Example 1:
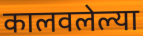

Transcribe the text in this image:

कालवलेल्या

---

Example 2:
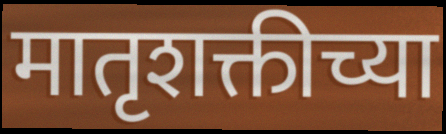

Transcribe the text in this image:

मातृशक्तीच्या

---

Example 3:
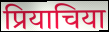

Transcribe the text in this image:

प्रियाचिया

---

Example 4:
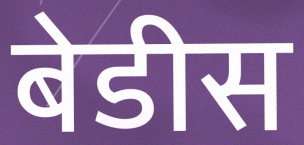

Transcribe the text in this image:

बेडीस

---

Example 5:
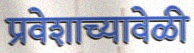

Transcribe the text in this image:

प्रवेशाच्यावेळी